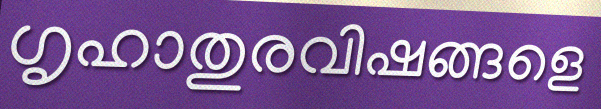
ഗൃഹാതുരവിഷങ്ങളെ